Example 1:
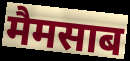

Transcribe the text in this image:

मैमसाब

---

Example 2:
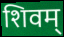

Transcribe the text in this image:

शिवम्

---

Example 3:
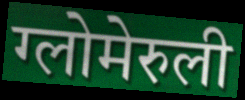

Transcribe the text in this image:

ग्लोमेरुली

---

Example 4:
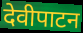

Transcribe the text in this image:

देवीपाटन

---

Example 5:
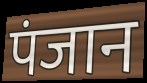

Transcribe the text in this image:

पंजान